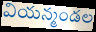
వియన్మండల